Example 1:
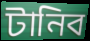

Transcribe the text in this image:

টানিব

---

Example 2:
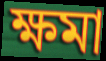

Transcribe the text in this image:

ক্ষমা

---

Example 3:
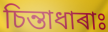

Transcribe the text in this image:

চিন্তাধাৰাঃ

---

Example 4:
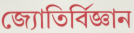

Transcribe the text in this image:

জ্যোতিৰ্বিজ্ঞান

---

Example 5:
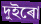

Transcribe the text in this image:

দুইৰো